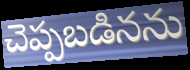
చెప్పబడినను